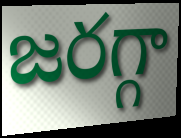
జరగ్గా